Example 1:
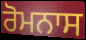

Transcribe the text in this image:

ਰੋਮਨਾਸ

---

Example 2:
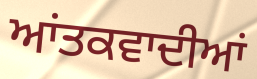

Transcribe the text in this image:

ਆਂਤਕਵਾਦੀਆਂ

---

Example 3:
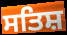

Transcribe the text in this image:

ਸਤਿਸ਼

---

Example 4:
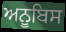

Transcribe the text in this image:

ਅਨੂਬਿਸ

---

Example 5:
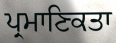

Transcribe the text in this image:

ਪ੍ਰਮਾਣਿਕਤਾ